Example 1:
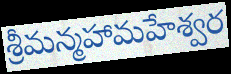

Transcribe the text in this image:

శ్రీమన్మహామహేశ్వర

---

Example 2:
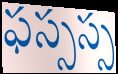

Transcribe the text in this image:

ఫస్సస్స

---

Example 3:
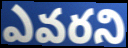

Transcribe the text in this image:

ఎవరని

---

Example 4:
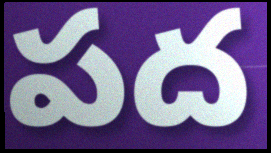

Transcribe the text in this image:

పద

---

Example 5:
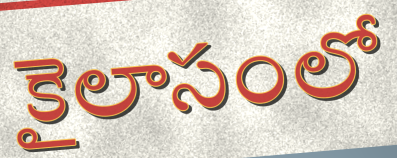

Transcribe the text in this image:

కైలాసంలో